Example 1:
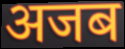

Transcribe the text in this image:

अजब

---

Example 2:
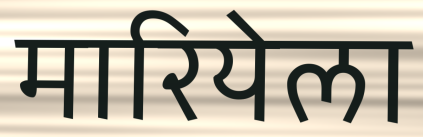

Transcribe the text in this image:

मारियेला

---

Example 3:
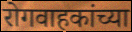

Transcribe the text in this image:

रोगवाहकांच्या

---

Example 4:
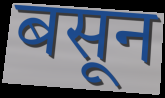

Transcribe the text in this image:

बसून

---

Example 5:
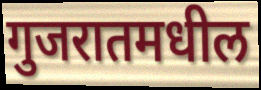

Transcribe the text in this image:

गुजरातमधील